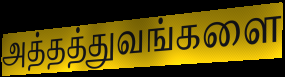
அத்தத்துவங்களை